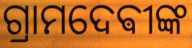
ଗ୍ରାମଦେଵୀଙ୍କ